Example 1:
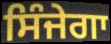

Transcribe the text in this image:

ਸਿੰਜੇਗਾ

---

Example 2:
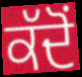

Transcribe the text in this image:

ਕੱਦੋਂ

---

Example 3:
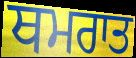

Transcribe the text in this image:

ਥਮਰਾਤ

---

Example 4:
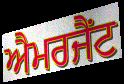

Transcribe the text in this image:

ਐਮਰਜੈਂਟ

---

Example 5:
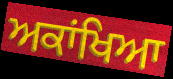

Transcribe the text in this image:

ਅਕਾਂਖਿਆ